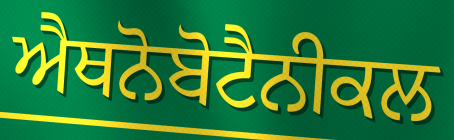
ਐਥਨੋਬੋਟੈਨੀਕਲ